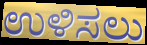
ಉಳಿಸಲು